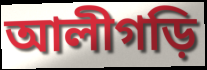
আলীগড়ি